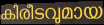
കിരീടവുമായ